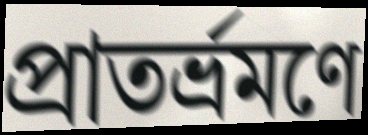
প্রাতর্ভ্রমণে